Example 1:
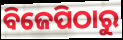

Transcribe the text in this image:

ବିଜେପିଠାରୁ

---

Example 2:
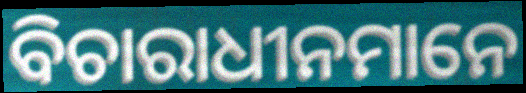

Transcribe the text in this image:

ବିଚାରାଧୀନମାନେ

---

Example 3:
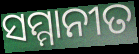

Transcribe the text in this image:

ସମ୍ମାନୀତ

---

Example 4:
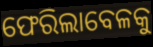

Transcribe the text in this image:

ଫେରିଲାବେଳକୁ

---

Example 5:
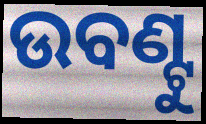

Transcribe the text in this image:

ଉବଣ୍ଟୁ